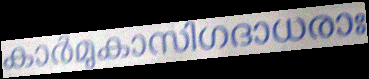
കാർമുകാസിഗദാധരാഃ